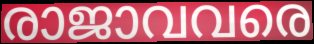
രാജാവവരെ